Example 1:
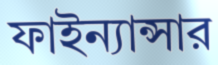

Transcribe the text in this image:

ফাইন্যান্সার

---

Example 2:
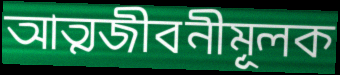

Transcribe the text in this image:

আত্মজীবনীমূলক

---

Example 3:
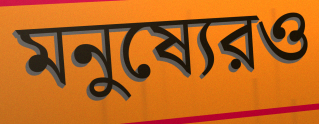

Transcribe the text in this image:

মনুষ্যেরও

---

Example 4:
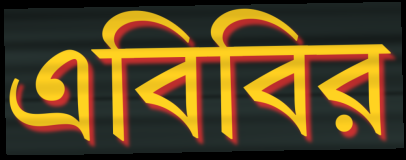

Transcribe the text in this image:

এবিবির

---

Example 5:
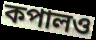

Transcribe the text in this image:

কপালও